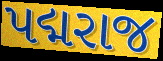
પદ્મરાજ